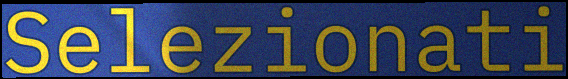
Selezionati